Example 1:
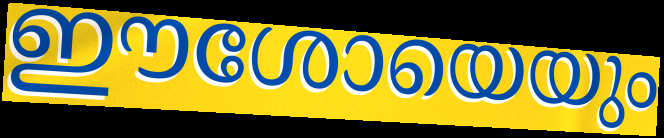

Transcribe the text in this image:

ഈശോയെയും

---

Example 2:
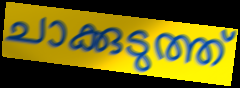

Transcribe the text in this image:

ചാക്കുടുത്ത്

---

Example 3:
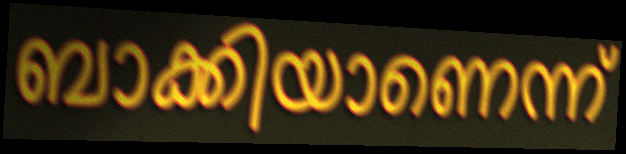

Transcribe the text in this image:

ബാക്കിയാണെന്ന്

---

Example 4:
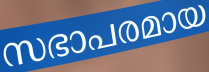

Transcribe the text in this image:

സഭാപരമായ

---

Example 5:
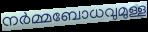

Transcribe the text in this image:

നർമ്മബോധവുമുള്ള